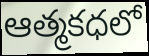
ఆత్మకధలో